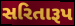
સરિતારૂપ